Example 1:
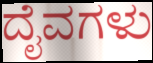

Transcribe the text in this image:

ದೈವಗಳು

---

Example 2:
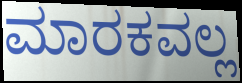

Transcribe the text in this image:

ಮಾರಕವಲ್ಲ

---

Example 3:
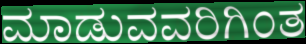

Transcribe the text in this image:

ಮಾಡುವವರಿಗಿಂತ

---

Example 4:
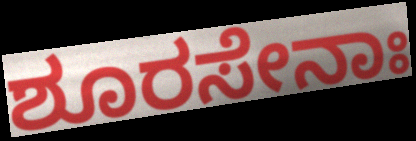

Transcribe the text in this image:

ಶೂರಸೇನಾಃ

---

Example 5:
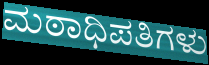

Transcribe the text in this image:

ಮಠಾಧಿಪತಿಗಳು